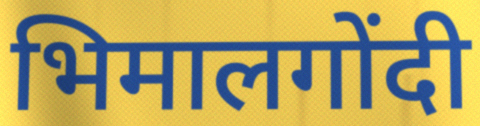
भिमालगोंदी